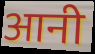
आनी